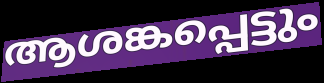
ആശങ്കപ്പെട്ടും